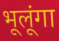
भूलूंगा